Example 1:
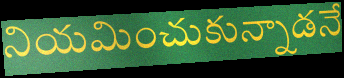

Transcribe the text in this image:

నియమించుకున్నాడనే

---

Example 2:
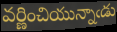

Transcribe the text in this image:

వర్ణించియున్నాఁడు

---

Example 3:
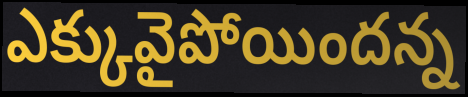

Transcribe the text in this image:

ఎక్కువైపోయిందన్న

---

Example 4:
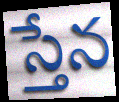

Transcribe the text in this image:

స్తేన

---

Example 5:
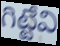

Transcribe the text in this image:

గిట్టేవి